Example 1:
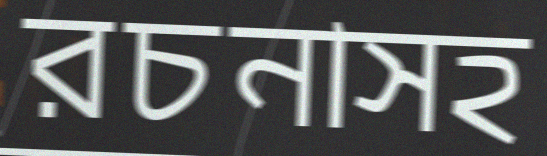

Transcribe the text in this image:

রচনাসহ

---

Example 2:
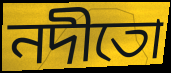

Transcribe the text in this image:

নদীতো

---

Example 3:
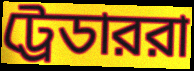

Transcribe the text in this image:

ট্রেডাররা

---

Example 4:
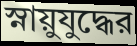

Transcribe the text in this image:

স্নায়ুযুদ্ধের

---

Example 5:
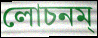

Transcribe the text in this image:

লোচনম্